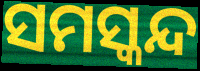
ସମସ୍କନ୍ଦ